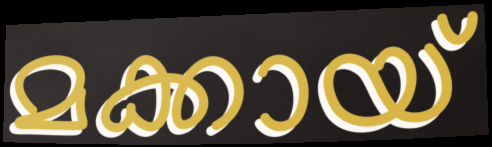
മക്കായ്